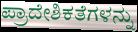
ಪ್ರಾದೇಶಿಕತೆಗಳನ್ನು